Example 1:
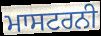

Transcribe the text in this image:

ਮਾਸਟਰਨੀ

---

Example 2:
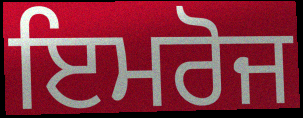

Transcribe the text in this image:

ਇਮਰੋਜ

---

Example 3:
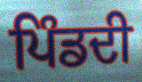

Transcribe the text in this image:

ਪਿੰਡਦੀ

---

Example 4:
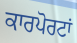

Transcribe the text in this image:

ਕਾਰਪੋਰਟਾਂ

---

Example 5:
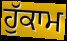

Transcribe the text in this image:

ਹੁੱਕਾਮ